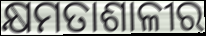
କ୍ଷମତାଶାଳୀର